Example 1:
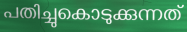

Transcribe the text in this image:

പതിച്ചുകൊടുക്കുന്നത്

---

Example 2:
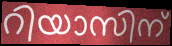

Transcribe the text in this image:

റിയാസിന്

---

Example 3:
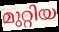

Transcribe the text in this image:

മുറ്റിയ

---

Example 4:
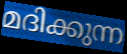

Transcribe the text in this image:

മദിക്കുന്ന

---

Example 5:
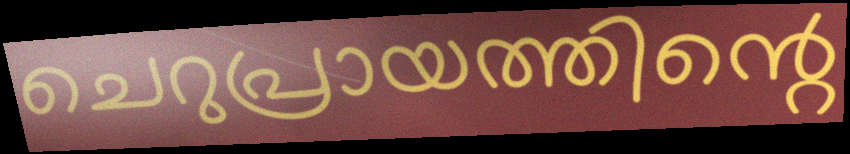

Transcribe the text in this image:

ചെറുപ്രായത്തിന്റെ